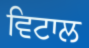
ਵਿਟਾਲ